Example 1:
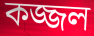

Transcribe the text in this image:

কজ্জল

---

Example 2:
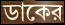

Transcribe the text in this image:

ডাকের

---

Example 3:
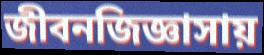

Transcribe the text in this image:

জীবনজিজ্ঞাসায়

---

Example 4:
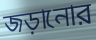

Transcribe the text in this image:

জড়ানোর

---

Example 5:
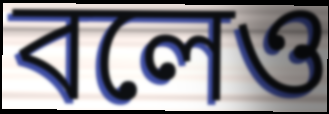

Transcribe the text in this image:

বলেও